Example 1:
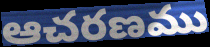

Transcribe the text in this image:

ఆచరణము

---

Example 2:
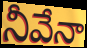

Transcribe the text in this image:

నీవేనా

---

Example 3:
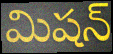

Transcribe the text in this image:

మిషన్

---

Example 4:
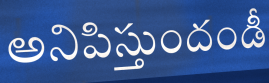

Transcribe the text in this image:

అనిపిస్తుందండీ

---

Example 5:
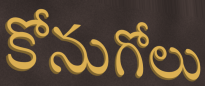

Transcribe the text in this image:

కోనుగోలు